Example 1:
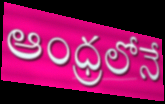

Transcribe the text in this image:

ఆంధ్రలోనే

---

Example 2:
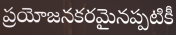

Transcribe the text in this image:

ప్రయోజనకరమైనప్పటికీ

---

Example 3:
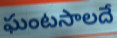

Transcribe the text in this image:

ఘంటసాలదే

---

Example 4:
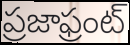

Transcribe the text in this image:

ప్రజాఫ్రంట్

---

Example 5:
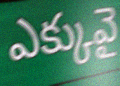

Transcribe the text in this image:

ఎక్కువై